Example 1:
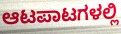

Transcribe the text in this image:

ಆಟಪಾಟಗಳಲ್ಲಿ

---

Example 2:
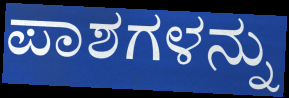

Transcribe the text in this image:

ಪಾಶಗಳನ್ನು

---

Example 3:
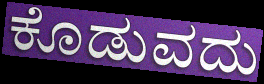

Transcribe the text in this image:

ಕೊಡುವದು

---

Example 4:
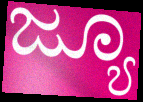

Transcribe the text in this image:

ಜ್ಯೂ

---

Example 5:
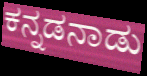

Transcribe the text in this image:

ಕನ್ನಡನಾಡು